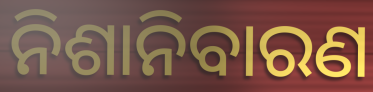
ନିଶାନିବାରଣ